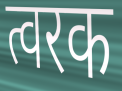
त्वरक